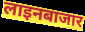
लाइनबाजार